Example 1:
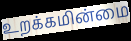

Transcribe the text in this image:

உறக்கமின்மை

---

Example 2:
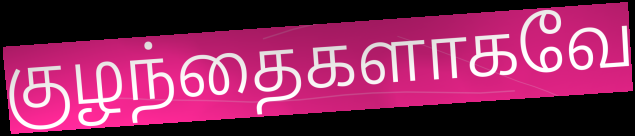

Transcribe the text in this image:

குழந்தைகளாகவே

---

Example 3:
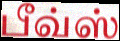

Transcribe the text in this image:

பீவ்ஸ்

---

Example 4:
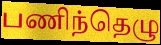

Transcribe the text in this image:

பணிந்தெழு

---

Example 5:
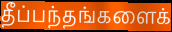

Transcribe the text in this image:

தீப்பந்தங்களைக்